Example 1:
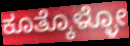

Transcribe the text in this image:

ಕೂತ್ಕೊಳ್ಳೋ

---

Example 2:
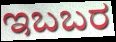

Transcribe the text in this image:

ಇಬಬರ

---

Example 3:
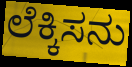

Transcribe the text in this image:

ಲೆಕ್ಕಿಸನು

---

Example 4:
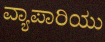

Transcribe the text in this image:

ವ್ಯಾಪಾರಿಯು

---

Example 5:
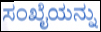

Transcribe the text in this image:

ಸಂಖೈಯನ್ನು